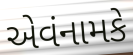
એવંનામકે